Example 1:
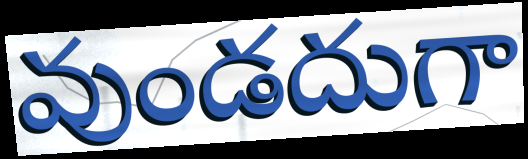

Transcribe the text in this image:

వుండదుగా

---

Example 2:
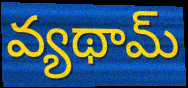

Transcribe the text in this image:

వ్యథామ్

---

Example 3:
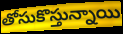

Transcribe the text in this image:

తోసుకొస్తున్నాయి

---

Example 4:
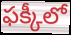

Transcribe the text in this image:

ఫక్కీలో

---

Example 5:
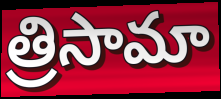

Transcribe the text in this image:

త్రిసామా